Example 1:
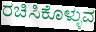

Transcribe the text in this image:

ರಚಿಸಿಕೊಳ್ಳುವ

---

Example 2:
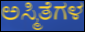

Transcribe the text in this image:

ಅಸ್ಮಿತೆಗಳ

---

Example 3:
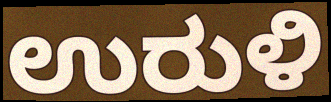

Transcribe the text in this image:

ಉರುಳಿ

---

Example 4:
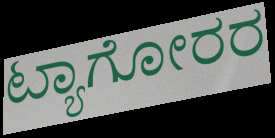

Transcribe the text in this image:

ಟ್ಯಾಗೋರರ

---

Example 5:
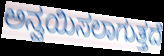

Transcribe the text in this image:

ಅನ್ವಯಿಸಲಾಗುತ್ತದೆ